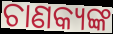
ଚାଣକ୍ୟଙ୍କ